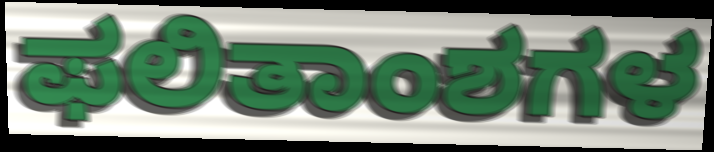
ಫಲಿತಾಂಶಗಳ